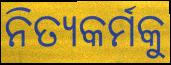
ନିତ୍ୟକର୍ମକୁ